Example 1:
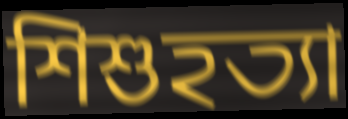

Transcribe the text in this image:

শিশুহত্যা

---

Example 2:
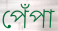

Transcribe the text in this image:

পেঁপা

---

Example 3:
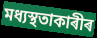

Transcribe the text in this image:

মধ্যস্থতাকাৰীৰ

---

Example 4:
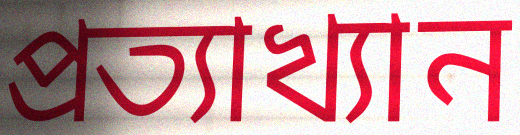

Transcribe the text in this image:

প্ৰত্যাখ্যান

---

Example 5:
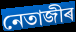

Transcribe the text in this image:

নেতাজীৰ